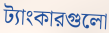
ট্যাংকারগুলো